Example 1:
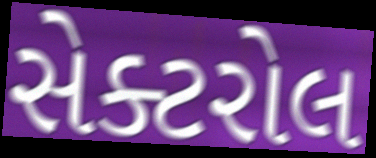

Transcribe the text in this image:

સેક્ટરોલ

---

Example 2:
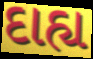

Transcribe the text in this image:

દાહ્ય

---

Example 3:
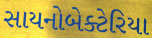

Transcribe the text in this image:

સાયનોબેક્ટેરિયા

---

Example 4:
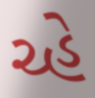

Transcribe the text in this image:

ચ્હે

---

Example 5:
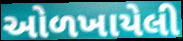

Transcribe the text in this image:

ઓળખાયેલી